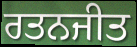
ਰਤਨਜੀਤ